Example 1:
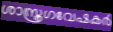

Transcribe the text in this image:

ശാസ്ത്രഗവേഷകർ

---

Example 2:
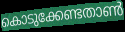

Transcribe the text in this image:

കൊടുക്കേണ്ടതാൺ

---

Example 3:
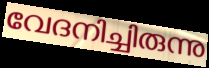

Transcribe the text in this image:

വേദനിച്ചിരുന്നു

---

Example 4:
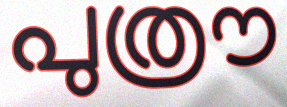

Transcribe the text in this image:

പുത്രൗ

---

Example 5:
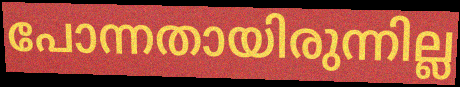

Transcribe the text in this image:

പോന്നതായിരുന്നില്ല